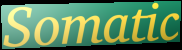
Somatic